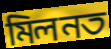
মিলনত